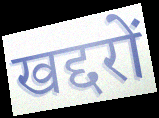
खद्दरों